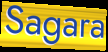
Sagara